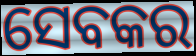
ସେବକର